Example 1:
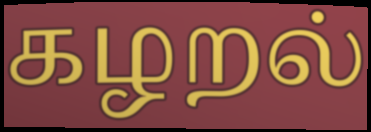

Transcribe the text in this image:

கழறல்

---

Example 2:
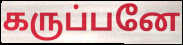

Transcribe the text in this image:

கருப்பனே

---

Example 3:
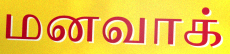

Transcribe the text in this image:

மனவாக்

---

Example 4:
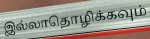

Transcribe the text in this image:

இல்லாதொழிக்கவும்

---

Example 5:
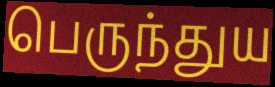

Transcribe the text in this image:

பெருந்துய